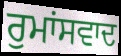
ਰੁਮਾਂਸਵਾਦ